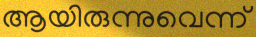
ആയിരുന്നുവെന്ന്